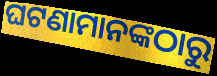
ଘଟଣାମାନଙ୍କଠାରୁ